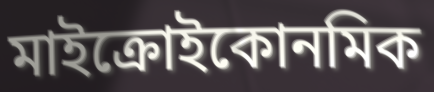
মাইক্রোইকোনমিক